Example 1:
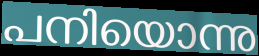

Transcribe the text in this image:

പനിയൊന്നു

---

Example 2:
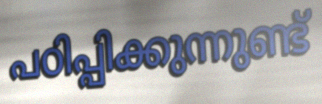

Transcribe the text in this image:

പഠിപ്പിക്കുന്നുണ്ട്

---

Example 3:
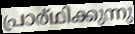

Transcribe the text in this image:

പ്രാര്ഥിക്കുന്നു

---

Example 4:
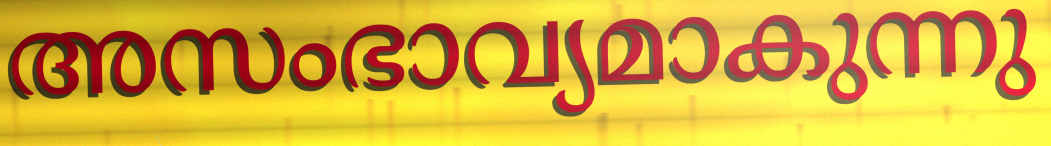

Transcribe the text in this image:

അസംഭാവ്യമാകുന്നു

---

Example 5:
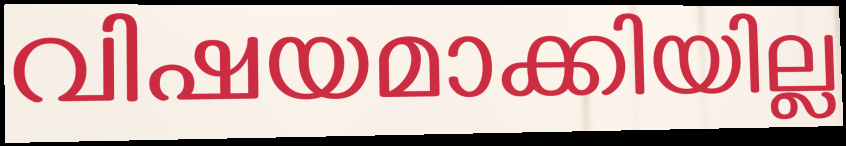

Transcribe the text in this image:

വിഷയമാക്കിയില്ല